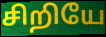
சிறியே